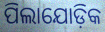
ପିଲାଯୋଡ଼ିକ